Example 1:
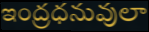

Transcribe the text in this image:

ఇంద్రధనువులా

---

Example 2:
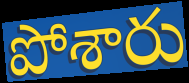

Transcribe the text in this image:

పోశారు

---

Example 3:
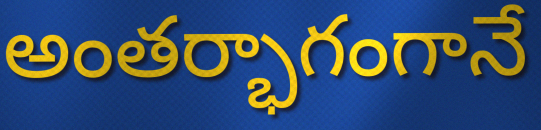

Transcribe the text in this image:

అంతర్భాగంగానే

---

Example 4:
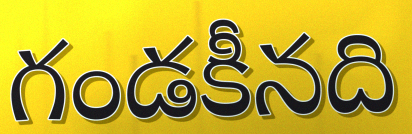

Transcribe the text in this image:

గండకీనది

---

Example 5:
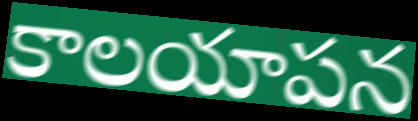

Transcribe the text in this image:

కాలయాపన